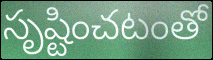
సృష్టించటంతో